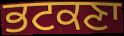
ਭਟਕਣਾ